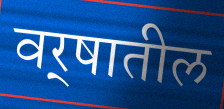
वर्षातील